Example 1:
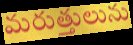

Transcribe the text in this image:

మరుత్తులును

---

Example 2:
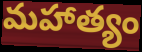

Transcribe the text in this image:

మహాత్యం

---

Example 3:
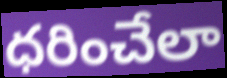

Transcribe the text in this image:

ధరించేలా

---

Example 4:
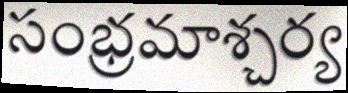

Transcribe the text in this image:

సంభ్రమాశ్చర్య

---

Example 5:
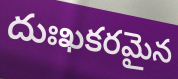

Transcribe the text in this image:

దుఃఖకరమైన